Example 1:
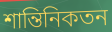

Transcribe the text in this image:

শান্তিনিকতন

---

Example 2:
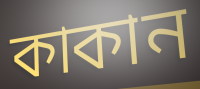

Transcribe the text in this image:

কাকান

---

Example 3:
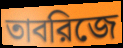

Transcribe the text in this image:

তাবরিজে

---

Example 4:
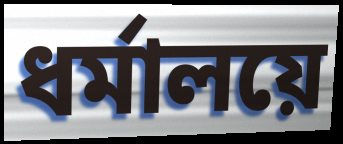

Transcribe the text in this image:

ধর্মালয়ে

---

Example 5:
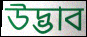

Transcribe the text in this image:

উদ্ভাব